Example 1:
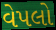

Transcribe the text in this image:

વેપલો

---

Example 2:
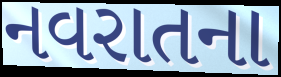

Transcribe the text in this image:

નવરાતના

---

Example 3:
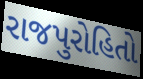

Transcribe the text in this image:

રાજપુરોહિતો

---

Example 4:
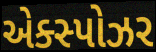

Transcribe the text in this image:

એક્સ્પોઝર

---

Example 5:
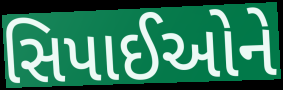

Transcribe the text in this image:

સિપાઈઓને